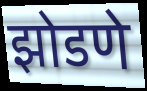
झोडणे